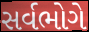
સર્વભોગે